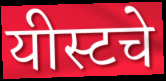
यीस्टचे